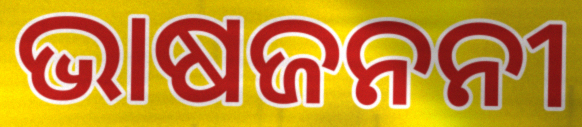
ଭାଷଜନନୀ